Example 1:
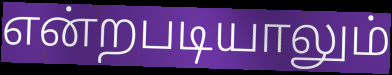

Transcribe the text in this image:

என்றபடியாலும்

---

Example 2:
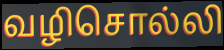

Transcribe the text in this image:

வழிசொல்லி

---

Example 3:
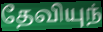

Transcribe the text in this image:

தேவியுந்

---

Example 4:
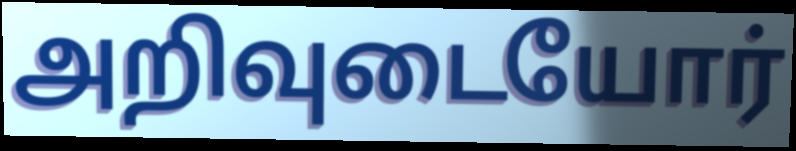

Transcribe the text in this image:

அறிவுடையோர்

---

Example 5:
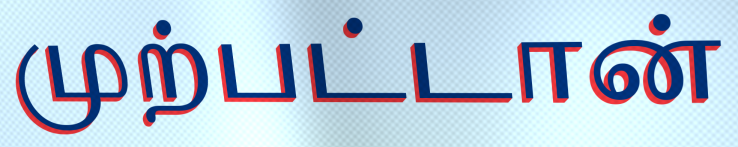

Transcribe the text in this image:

முற்பட்டான்